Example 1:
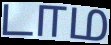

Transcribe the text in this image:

டாம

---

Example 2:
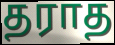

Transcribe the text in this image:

தராத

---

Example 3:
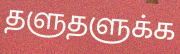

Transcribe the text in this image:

தளுதளுக்க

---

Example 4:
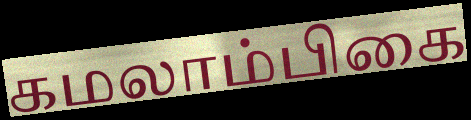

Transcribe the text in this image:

கமலாம்பிகை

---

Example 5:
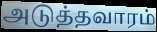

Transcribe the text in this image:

அடுத்தவாரம்